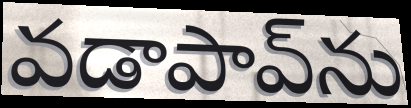
వడాపావ్‌ను